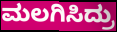
ಮಲಗಿಸಿದ್ರು